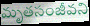
మృతసంజీవని